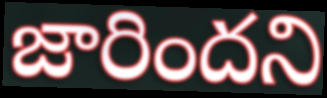
జారిందని